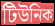
টিউনিক